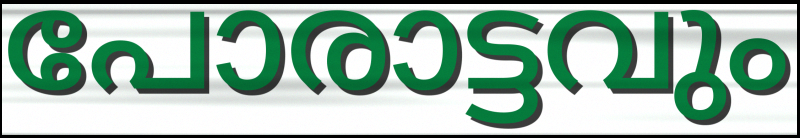
പോരാട്ടവും